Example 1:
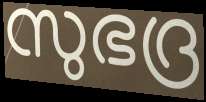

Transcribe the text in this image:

സുഭദ്ര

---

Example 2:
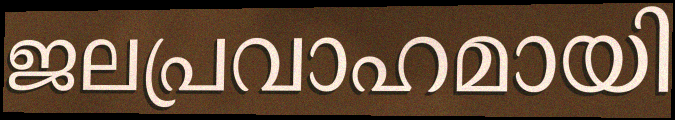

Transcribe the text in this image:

ജലപ്രവാഹമായി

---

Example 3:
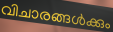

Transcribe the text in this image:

വിചാരങ്ങൾക്കും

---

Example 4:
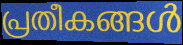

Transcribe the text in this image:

പ്രതീകങ്ങൾ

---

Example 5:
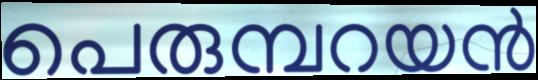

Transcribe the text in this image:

പെരുമ്പറയൻ